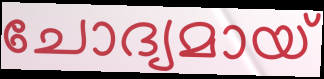
ചോദ്യമായ്